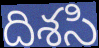
దిశసి